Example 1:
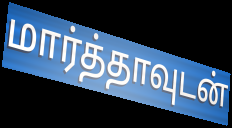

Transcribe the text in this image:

மார்த்தாவுடன்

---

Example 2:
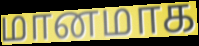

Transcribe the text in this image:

மானமாக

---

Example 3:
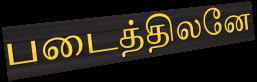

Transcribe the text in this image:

படைத்திலனே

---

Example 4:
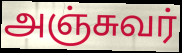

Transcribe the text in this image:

அஞ்சுவர்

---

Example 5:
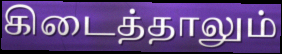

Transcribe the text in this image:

கிடைத்தாலும்